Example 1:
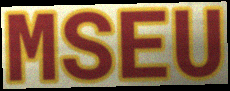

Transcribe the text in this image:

MSEU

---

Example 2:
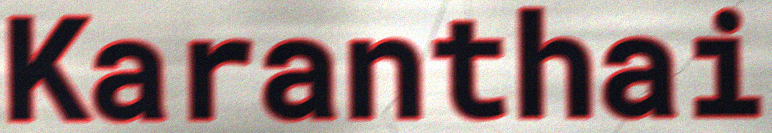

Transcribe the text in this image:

Karanthai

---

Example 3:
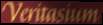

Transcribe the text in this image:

Veritasium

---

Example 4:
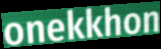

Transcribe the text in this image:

onekkhon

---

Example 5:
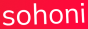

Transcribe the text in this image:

sohoni